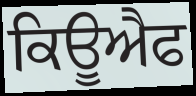
ਕਿਊਐਫ